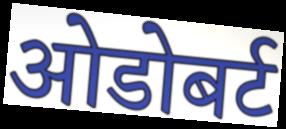
ओडोबर्ट